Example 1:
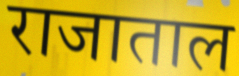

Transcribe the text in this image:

राजाताल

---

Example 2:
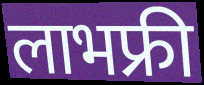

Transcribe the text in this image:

लाभफ्री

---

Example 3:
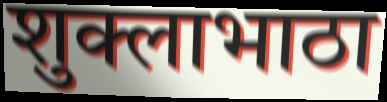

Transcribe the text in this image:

शुक्लाभाठा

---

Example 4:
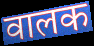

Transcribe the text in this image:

वालक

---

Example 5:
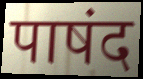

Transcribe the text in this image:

पाषंद